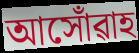
আসোঁৱাহ